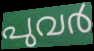
പുവർ